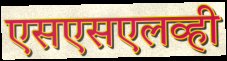
एसएसएलव्ही